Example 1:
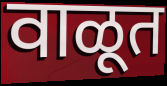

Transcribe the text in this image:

वाळूत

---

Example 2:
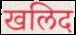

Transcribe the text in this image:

खलिद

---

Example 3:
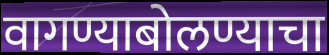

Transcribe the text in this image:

वागण्याबोलण्याचा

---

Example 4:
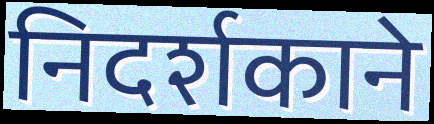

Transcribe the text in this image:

निदर्शकाने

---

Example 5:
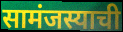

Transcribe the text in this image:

सामंजस्याची